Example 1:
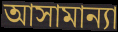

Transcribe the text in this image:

আসামান্যা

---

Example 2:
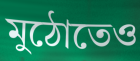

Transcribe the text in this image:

মুঠোতেও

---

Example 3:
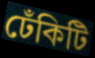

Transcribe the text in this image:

ঢেঁকিটি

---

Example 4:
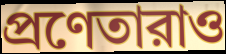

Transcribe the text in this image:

প্রণেতারাও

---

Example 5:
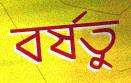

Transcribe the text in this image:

বর্ষতু